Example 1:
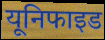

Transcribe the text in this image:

यूनिफाइड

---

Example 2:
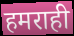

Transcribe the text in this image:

हमराही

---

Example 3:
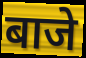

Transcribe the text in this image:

बाजे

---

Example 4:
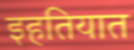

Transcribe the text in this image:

इहतियात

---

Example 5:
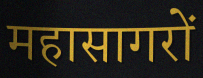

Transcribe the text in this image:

महासागरों